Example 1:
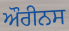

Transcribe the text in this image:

ਔਰੀਨਸ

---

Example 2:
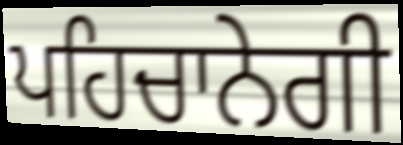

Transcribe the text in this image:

ਪਹਿਚਾਨੇਗੀ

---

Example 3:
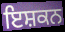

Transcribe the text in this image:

ਇਸ਼ਕਨ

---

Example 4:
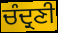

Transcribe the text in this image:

ਚੰਦ੍ਰਣੀ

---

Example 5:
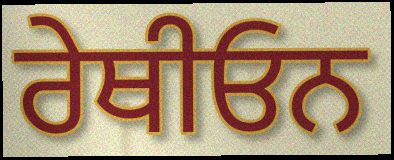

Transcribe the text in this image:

ਰੇਥੀਓਨ